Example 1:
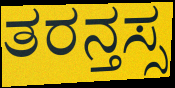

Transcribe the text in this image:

ತರನ್ತಸ್ಸ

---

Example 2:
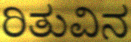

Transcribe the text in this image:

ರಿತುವಿನ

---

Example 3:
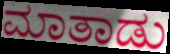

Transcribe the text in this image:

ಮಾತಾಡು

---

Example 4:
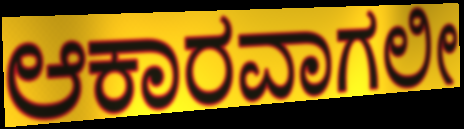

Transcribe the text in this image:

ಆಕಾರವಾಗಲೀ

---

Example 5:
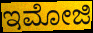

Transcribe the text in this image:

ಇಮೋಜಿ